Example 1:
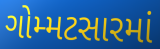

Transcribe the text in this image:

ગોમ્મટસારમાં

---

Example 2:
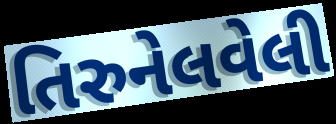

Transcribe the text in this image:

તિરુનેલવેલી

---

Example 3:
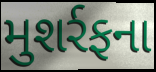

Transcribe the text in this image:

મુશર્રફના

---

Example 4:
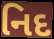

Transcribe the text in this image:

નિદ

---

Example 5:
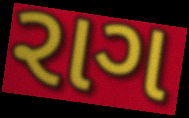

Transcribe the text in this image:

રાગ